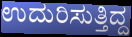
ಉದುರಿಸುತ್ತಿದ್ದ